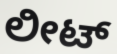
ಲೀಟ್